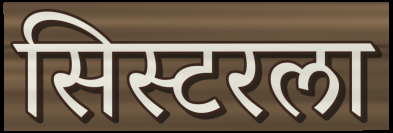
सिस्टरला